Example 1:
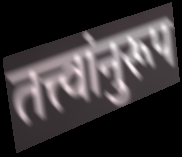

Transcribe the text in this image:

तत्त्वांनुरूप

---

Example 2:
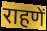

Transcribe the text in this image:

राहणें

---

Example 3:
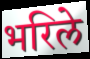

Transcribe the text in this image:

भरिले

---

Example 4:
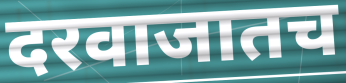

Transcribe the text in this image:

दरवाजातच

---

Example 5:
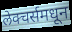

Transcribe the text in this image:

लेक्चर्समधून